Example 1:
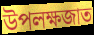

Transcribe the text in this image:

উপলক্ষজাত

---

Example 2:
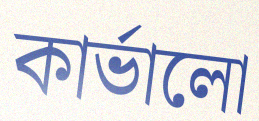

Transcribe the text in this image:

কার্ভালো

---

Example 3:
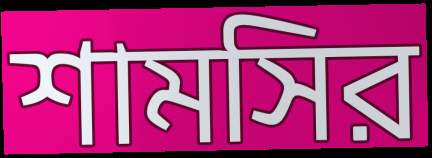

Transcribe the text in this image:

শামসির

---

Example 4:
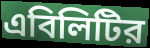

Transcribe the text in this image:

এবিলিটির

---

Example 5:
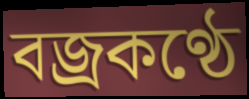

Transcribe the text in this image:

বজ্রকণ্ঠে